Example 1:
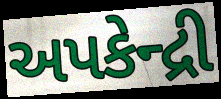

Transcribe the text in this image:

અપકેન્દ્રી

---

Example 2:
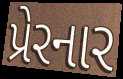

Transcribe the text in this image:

પ્રેરનાર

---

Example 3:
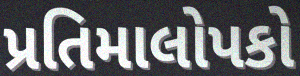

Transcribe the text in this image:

પ્રતિમાલોપકો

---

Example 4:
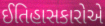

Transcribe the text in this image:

ઈતિહાસકારોએ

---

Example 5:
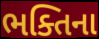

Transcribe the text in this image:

ભક્તિના